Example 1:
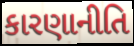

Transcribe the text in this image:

કારણાનીતિ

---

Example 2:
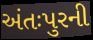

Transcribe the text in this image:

અંતઃપુરની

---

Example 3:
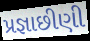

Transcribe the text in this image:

પ્રજ્ઞાછીણી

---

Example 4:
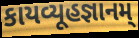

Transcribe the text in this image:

કાયવ્યૂહજ્ઞાનમ્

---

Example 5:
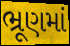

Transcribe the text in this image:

ભ્રૂણમાં